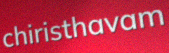
chiristhavam